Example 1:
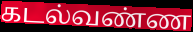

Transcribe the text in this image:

கடல்வண்ண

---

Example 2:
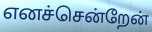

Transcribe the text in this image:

எனச்சென்றேன்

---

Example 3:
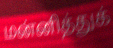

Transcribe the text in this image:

மன்னித்துக்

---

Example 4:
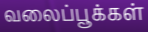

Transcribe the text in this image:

வலைப்பூக்கள்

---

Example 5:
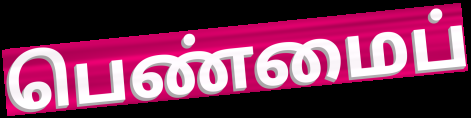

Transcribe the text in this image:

பெண்மைப்